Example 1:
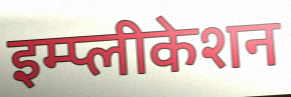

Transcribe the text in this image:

इम्प्लीकेशन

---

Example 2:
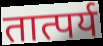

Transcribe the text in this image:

तात्पर्य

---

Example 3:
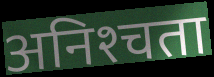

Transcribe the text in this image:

अनिश्चता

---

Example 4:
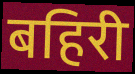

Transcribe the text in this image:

बहिरी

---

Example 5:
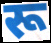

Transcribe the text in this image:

रू